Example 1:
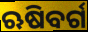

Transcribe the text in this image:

ଋଷିବର୍ଗ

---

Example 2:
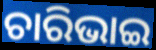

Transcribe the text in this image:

ଚାରିଭାଇ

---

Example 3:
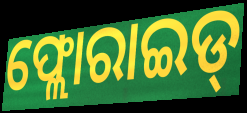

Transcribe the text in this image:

ଫ୍ଲୋରାଇଡ୍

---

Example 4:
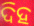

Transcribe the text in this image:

ଦିହ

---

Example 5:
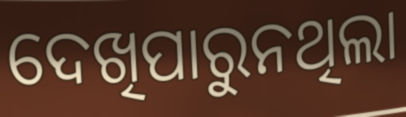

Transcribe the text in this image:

ଦେଖିପାରୁନଥିଲା